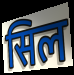
सिल